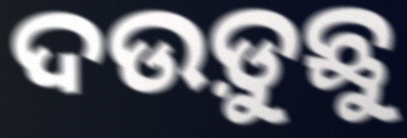
ଦଉଡ଼ୁଛୁ